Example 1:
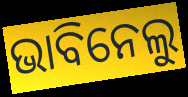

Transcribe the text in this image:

ଭାବିନେଲୁ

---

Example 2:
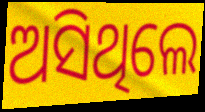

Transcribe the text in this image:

ଅସିଥିଲେ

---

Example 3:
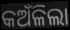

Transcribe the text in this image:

କଅଁଳିଲା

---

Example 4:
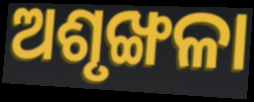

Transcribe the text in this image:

ଅଶୃଙ୍ଖଳା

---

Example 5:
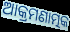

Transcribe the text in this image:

ଆକ୍ରମଣାତ୍ମକ